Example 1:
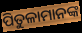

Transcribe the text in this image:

ପିତୁଳାମାନଙ୍କ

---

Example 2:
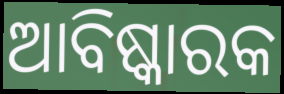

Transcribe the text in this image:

ଆବିଷ୍କାରକ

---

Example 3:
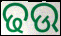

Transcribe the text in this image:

ଢଉ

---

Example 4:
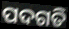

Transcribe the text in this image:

ପଦଗତି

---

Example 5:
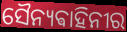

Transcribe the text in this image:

ସୈନ୍ୟଵାହିନୀର